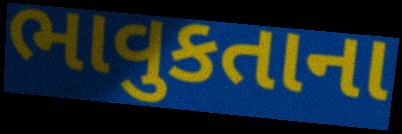
ભાવુકતાના